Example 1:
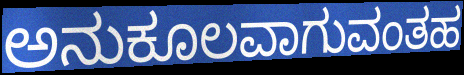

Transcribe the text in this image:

ಅನುಕೂಲವಾಗುವಂತಹ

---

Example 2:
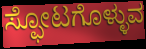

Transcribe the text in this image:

ಸ್ಫೋಟಗೊಳ್ಳುವ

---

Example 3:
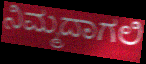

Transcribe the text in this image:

ನಿಮ್ಮದಾಗಲಿ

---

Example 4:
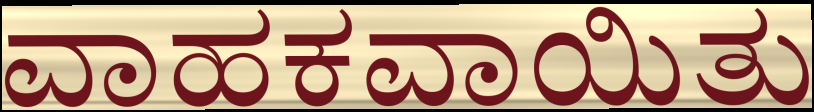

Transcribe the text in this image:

ವಾಹಕವಾಯಿತು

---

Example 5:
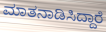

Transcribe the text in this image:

ಮಾತನಾಡಿಸಿದ್ದಾರೆ